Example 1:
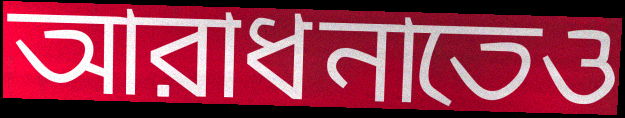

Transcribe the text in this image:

আরাধনাতেও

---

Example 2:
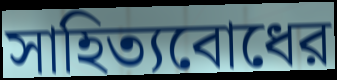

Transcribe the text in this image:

সাহিত্যবোধের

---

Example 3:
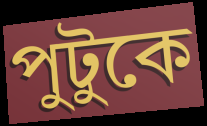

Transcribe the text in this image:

পুটুকে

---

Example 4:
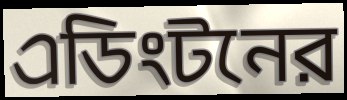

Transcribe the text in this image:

এডিংটনের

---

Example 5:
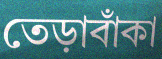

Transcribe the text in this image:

তেড়াবাঁকা